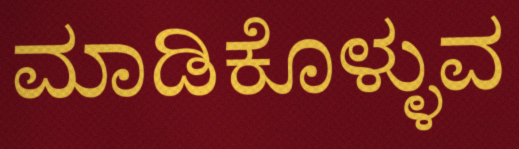
ಮಾಡಿಕೊಳ್ಳುವ